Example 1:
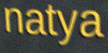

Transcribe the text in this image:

natya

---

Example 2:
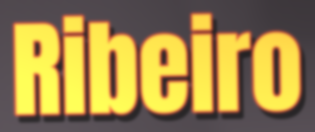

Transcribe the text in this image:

Ribeiro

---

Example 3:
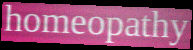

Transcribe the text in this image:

homeopathy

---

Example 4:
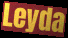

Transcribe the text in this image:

Leyda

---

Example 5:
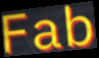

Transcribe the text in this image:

Fab